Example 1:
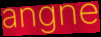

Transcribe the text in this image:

angne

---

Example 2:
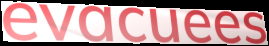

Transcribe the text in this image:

evacuees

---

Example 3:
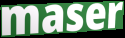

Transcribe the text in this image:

maser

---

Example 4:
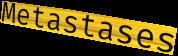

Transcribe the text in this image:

Metastases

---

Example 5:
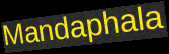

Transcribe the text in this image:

Mandaphala